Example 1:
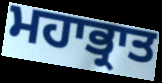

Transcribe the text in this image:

ਮਹਾਭ੍ਰਾਤ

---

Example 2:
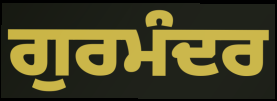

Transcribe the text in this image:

ਗੁਰਮੰਦਰ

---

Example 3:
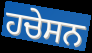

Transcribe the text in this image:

ਹਚੇਸਨ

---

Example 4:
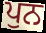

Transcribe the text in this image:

ਪੁਨ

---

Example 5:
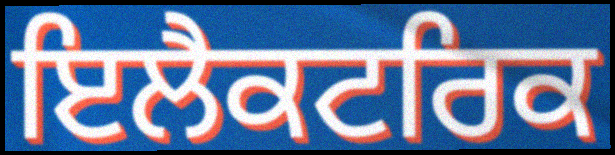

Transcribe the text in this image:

ਇਲੈਕਟਰਿਕ